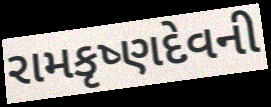
રામકૃષ્ણદેવની